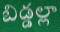
బిడ్డల్లా